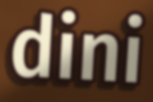
dini